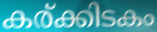
കര്ക്കിടകം